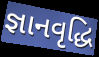
જ્ઞાનવૃદ્ધિ